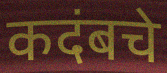
कदंबचे